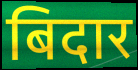
बिदार